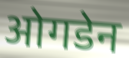
ओगडेन